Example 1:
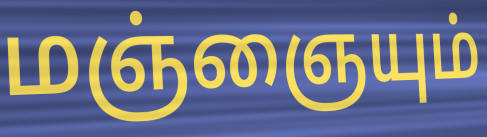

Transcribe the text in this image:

மஞ்ஞையும்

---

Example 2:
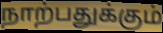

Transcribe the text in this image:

நாற்பதுக்கும்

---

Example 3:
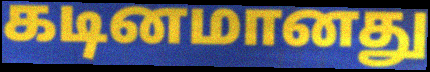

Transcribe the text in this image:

கடினமானது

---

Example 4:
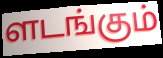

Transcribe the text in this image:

ளடங்கும்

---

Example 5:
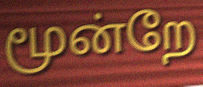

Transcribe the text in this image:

மூன்றே